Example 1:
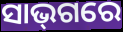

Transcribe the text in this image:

ସାଭ୍‌ଗରେ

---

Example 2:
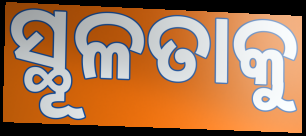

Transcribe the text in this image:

ସ୍ଥୂଳତାକୁ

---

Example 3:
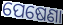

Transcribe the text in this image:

ପେଷେଣା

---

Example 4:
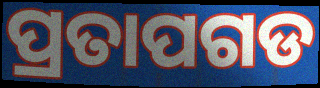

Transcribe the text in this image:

ପ୍ରତାପଗଡ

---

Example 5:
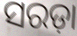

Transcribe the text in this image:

ସରଡ଼ା